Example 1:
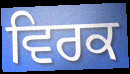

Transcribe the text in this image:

ਵਿਰਕ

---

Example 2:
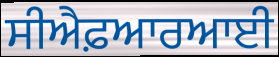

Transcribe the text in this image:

ਸੀਐਫ਼ਆਰਆਈ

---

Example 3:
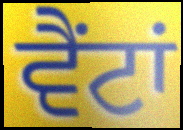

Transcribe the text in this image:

ਵੈਂਟਾਂ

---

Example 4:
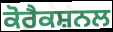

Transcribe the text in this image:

ਕੋਰੈਕਸ਼ਨਲ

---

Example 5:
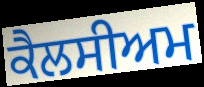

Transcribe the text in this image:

ਕੈਲਸੀਅਮ